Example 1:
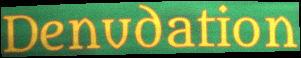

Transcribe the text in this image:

Denudation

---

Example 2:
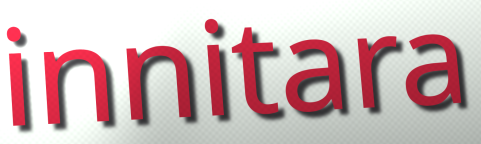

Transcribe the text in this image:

innitara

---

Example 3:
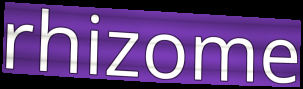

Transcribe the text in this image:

rhizome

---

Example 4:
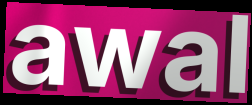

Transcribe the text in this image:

awal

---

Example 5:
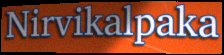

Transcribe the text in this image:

Nirvikalpaka